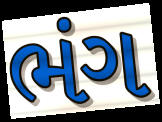
ભંગ